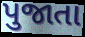
પુજાતા